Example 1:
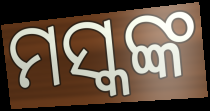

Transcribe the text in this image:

ମସ୍କଙ୍କ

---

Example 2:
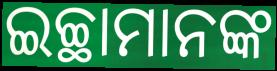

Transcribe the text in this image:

ଇଚ୍ଛାମାନଙ୍କ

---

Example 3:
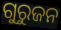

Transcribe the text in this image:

ଗୁରୁଜନ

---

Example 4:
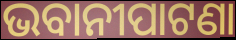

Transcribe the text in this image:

ଭବାନୀପାଟଣା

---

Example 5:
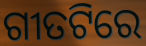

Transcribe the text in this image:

ଗୀତଟିରେ